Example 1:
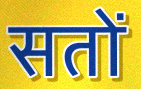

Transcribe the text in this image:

सतों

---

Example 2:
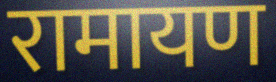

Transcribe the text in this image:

रामायण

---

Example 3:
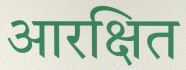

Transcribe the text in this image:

आरक्षित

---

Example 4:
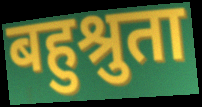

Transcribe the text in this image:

बहुश्रुता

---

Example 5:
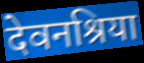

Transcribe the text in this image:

देवनश्रिया